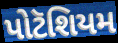
પોટૅશિયમ